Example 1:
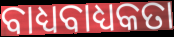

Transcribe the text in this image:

ବାଧ୍ୟବାଧ୍ୟକତା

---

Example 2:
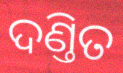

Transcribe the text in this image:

ଦଣ୍ତିତ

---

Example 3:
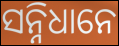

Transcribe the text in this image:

ସନ୍ନିଧାନେ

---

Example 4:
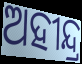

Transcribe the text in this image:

ଅହୀନ୍ଦ୍ର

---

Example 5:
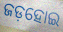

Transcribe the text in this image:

ଜଡ଼ହୋଇ